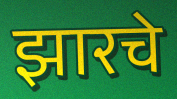
झारचे